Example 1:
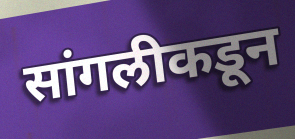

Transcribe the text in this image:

सांगलीकडून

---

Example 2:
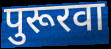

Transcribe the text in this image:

पुरूरवा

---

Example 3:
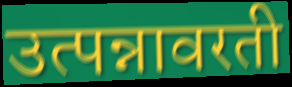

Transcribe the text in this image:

उत्पन्नावरती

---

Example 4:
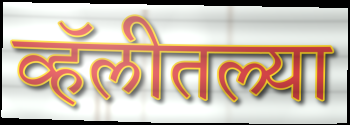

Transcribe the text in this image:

व्हॅलीतल्या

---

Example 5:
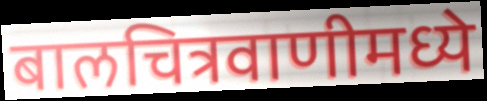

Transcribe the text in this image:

बालचित्रवाणीमध्ये